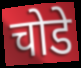
चोडे